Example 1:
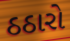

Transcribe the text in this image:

ઠઠારો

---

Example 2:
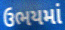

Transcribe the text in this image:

ઉભયમાં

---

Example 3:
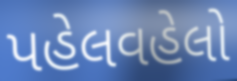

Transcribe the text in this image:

પહેલવહેલો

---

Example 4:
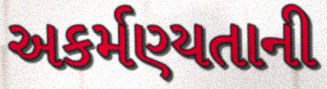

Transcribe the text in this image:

અકર્મણ્યતાની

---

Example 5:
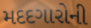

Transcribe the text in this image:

મદદગારોની